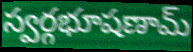
స్వర్గభూషణామ్